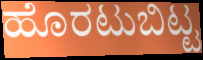
ಹೊರಟುಬಿಟ್ಟ